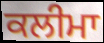
ਕਲੀਮਾ